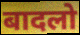
बादलो